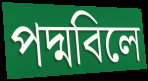
পদ্মবিলে